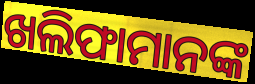
ଖଲିଫାମାନଙ୍କ